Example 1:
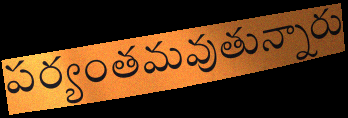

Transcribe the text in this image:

పర్యంతమవుతున్నారు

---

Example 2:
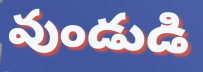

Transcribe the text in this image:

వుండుడి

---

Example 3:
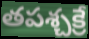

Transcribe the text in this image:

తపశ్చక్రే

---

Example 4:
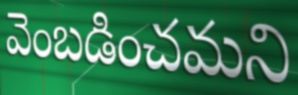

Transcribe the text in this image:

వెంబడించమని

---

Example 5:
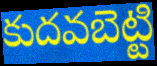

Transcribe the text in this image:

కుదవబెట్టి